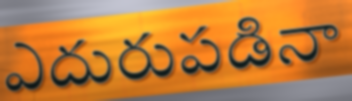
ఎదురుపడినా